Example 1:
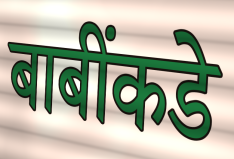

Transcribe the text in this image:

बाबींकडे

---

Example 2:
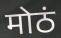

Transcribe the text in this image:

मोठं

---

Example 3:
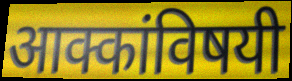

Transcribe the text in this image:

आक्कांविषयी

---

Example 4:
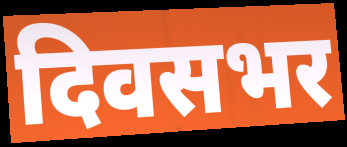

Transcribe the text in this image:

दिवसभर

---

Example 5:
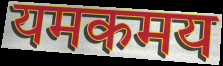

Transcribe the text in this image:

यमकमय